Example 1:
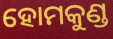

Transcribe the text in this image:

ହୋମକୁଣ୍ଡ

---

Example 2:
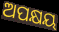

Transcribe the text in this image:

ଅପକ୍ଷୟ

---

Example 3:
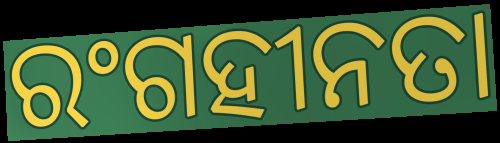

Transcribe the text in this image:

ରଂଗହୀନତା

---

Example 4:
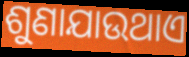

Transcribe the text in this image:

ଶୁଣାଯାଉଥାଏ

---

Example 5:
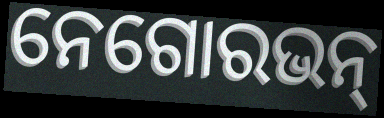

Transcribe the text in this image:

ନେଗୋରଭନ୍